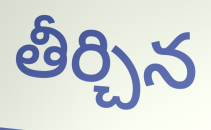
తీర్చిన